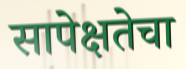
सापेक्षतेचा